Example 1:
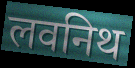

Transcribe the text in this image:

लवनिथ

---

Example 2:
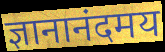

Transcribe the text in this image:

ज्ञानानंदमय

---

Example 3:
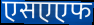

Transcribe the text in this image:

एसएएफ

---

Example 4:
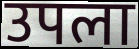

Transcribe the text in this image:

उपला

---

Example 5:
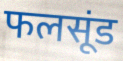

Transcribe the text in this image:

फलसूंड